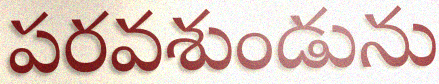
పరవశుండును